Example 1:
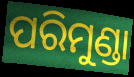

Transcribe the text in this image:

ପରିମୁଣ୍ଡା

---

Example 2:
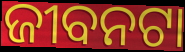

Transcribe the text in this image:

ଜୀବନଟା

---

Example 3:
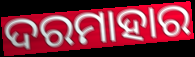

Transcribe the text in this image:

ଦରମାହାର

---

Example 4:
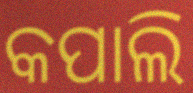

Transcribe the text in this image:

କପାଲି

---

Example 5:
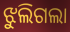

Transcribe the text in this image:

ଝୁଲିଗଲା